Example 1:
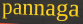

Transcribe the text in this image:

pannaga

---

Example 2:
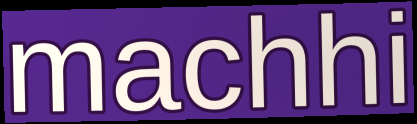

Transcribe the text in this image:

machhi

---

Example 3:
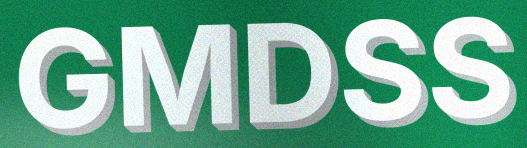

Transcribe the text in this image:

GMDSS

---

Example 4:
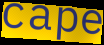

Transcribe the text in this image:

cape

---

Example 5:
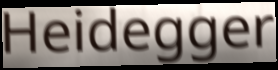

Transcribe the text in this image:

Heidegger